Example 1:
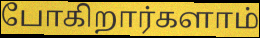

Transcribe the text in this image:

போகிறார்களாம்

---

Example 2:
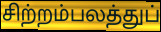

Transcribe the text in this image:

சிற்றம்பலத்துப்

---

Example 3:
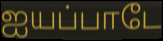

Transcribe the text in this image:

ஐயப்பாடே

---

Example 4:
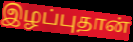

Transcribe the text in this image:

இழப்புதான்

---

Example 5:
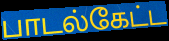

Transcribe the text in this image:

பாடல்கேட்ட